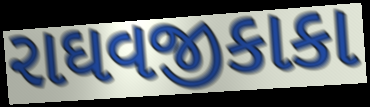
રાઘવજીકાકા